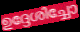
ഉദ്ദേശിച്ചോ